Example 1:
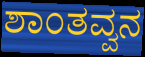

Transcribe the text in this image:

ಶಾಂತವ್ವನ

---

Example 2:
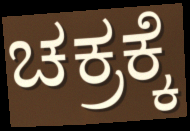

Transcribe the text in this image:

ಚಕ್ರಕ್ಕೆ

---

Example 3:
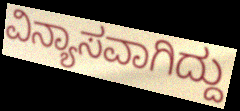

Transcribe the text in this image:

ವಿನ್ಯಾಸವಾಗಿದ್ದು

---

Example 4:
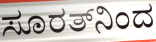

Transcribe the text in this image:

ಸೂರತ್‌ನಿಂದ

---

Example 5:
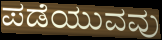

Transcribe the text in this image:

ಪಡೆಯುವವು